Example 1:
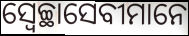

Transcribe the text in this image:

ସ୍ୱେଚ୍ଛାସେବୀମାନେ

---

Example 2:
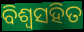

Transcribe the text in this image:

ବିଶ୍ଵସହିତ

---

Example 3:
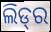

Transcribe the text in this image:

ଲିଡ୍‌ର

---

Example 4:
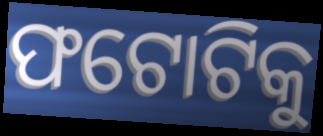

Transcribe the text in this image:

ଫଟୋଟିକୁ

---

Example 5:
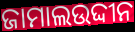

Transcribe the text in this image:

ଜାମାଲଉଦ୍ଦୀନ